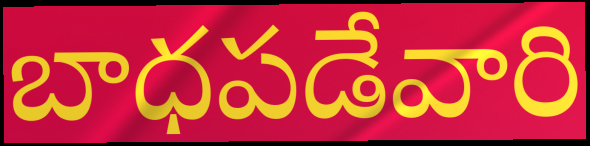
బాధపడేవారి